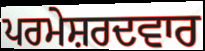
ਪਰਮੇਸ਼ਰਦਵਾਰ